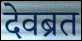
देवब्रत